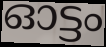
ഓട്ടം